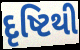
દૃષ્ટિથી